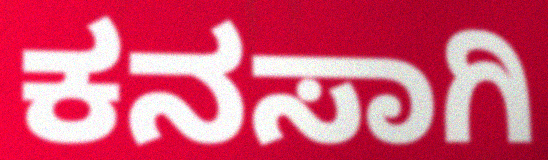
ಕನಸಾಗಿ